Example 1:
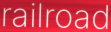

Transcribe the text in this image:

railroad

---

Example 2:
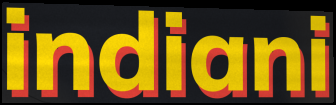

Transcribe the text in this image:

indiani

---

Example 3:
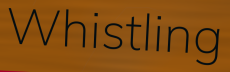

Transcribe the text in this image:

Whistling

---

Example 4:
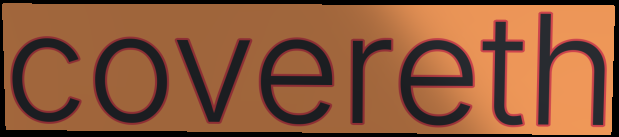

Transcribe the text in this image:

covereth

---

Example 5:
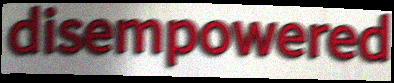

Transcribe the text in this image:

disempowered